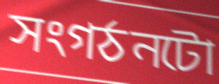
সংগঠনটো